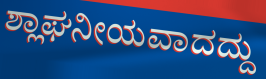
ಶ್ಲಾಘನೀಯವಾದದ್ದು